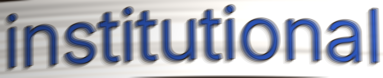
institutional